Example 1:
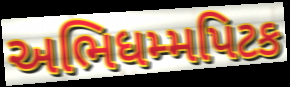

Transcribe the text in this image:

અભિધમ્મપિટક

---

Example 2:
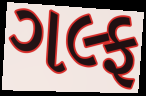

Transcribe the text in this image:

ગલ્ફ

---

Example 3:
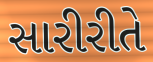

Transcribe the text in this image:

સારીરીતે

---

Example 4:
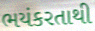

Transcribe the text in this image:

ભયંકરતાથી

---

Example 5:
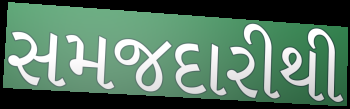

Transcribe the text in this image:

સમજદારીથી